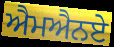
ਐਮਐਨਏ